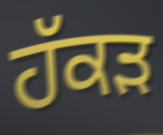
ਹੱਕੜ